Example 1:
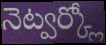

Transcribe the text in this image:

నెట్వర్క్లో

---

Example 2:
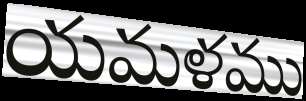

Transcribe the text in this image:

యమళము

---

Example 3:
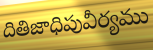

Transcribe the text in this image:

దితిజాధిపువీర్యము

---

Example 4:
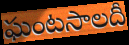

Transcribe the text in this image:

ఘంటసాలదీ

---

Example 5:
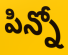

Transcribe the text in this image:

పిన్నో